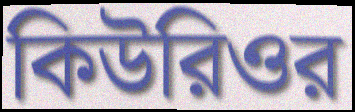
কিউরিওর